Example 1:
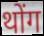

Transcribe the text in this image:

थोंग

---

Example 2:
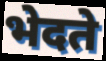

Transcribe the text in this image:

भेदते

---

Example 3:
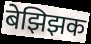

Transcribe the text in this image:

बेझिझक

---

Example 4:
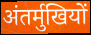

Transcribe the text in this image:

अंतर्मुखियों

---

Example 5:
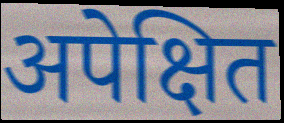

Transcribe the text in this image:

अपेक्षित